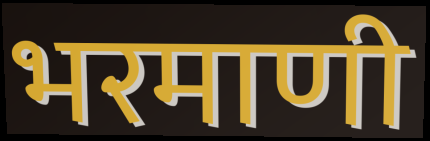
भरमाणी